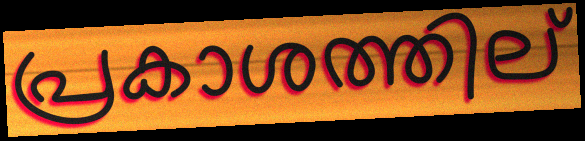
പ്രകാശത്തില്